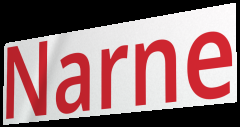
Narne